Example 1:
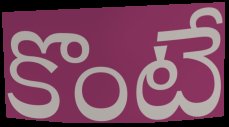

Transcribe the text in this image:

కొంటే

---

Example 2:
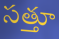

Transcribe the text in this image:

సత్తూ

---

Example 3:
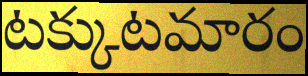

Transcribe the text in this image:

టక్కుటమారం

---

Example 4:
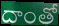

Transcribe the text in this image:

దాంతో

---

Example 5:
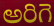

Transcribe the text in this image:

అరిగె